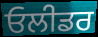
ਓਲੀਡਰ